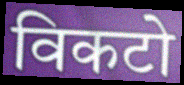
विकटो